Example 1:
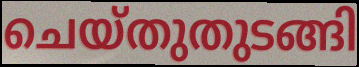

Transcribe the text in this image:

ചെയ്തുതുടങ്ങി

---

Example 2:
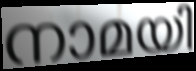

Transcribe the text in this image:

നാമയി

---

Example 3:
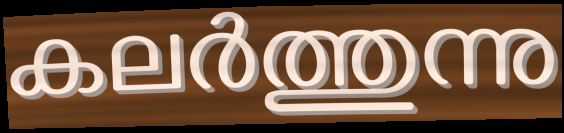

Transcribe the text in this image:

കലർത്തുന്നു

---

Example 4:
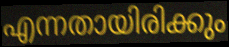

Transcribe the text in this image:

എന്നതായിരിക്കും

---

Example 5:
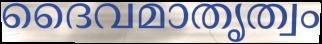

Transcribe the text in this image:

ദൈവമാതൃത്വം